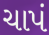
ચાપં